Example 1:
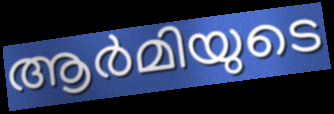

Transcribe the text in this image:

ആർമിയുടെ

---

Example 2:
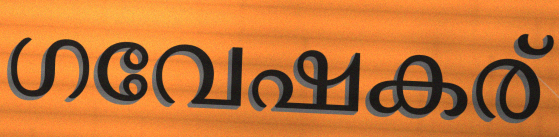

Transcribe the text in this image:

ഗവേഷകര്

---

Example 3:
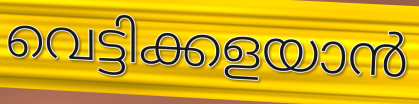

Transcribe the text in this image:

വെട്ടിക്കളയാൻ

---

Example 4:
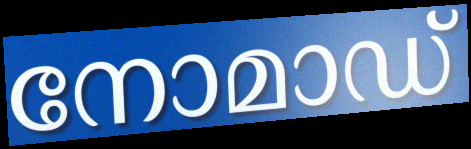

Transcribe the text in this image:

നോമാഡ്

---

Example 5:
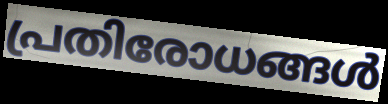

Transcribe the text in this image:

പ്രതിരോധങ്ങൾ